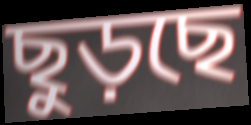
ছুড়ছে